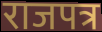
राजपत्र